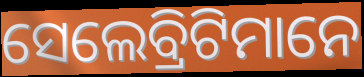
ସେଲେବ୍ରିଟିମାନେ